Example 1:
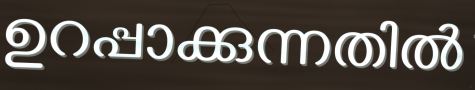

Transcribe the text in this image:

ഉറപ്പാക്കുന്നതിൽ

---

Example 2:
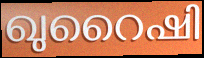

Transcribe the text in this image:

ഖുറൈഷി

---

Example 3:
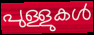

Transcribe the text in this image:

പുള്ളുകൾ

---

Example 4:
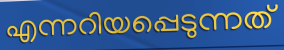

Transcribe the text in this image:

എന്നറിയപ്പെടുന്നത്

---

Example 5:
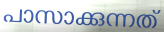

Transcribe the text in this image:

പാസാക്കുന്നത്